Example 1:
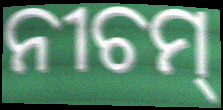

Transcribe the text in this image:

ନୀଚମ୍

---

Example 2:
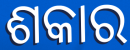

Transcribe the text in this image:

ଶକାର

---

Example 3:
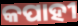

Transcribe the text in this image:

କପାହୀ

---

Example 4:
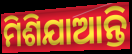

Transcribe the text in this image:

ମିଶିଯାଆନ୍ତି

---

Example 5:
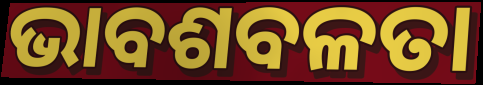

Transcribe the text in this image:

ଭାବଶବଳତା